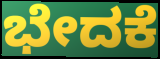
ಭೇದಕೆ